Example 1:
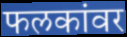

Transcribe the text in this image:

फलकांवर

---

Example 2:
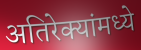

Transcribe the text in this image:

अतिरेक्यांमध्ये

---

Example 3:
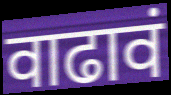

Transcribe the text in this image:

वाढावं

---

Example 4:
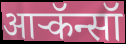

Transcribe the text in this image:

आर्‍कॅन्सॉ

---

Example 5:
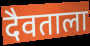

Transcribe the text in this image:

दैवताला